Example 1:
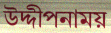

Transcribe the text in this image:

উদ্দীপনাময়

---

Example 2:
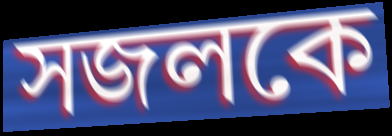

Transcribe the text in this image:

সজলকে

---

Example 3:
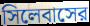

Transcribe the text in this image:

সিলেবাসের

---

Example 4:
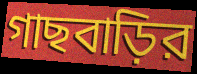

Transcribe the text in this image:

গাছবাড়ির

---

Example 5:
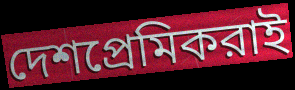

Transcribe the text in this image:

দেশপ্রেমিকরাই